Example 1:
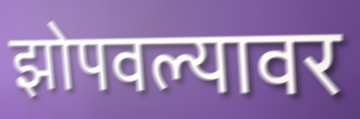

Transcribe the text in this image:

झोपवल्यावर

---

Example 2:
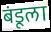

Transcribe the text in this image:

बंडूला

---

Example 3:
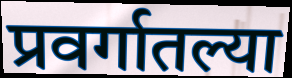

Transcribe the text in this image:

प्रवर्गातल्या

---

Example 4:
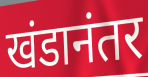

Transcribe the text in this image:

खंडानंतर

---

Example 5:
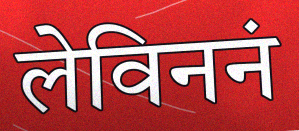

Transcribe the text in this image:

लेविननं